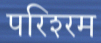
परिश्रम